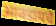
आवडायचे